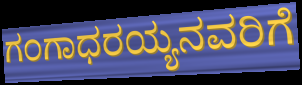
ಗಂಗಾಧರಯ್ಯನವರಿಗೆ